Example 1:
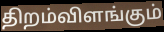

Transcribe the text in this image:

திறம்விளங்கும்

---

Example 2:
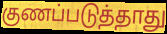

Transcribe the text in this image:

குணப்படுத்தாது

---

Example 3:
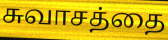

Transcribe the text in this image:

சுவாசத்தை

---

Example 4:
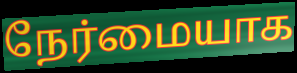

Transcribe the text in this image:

நேர்மையாக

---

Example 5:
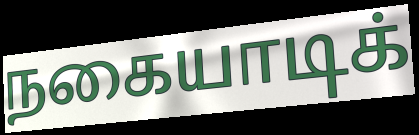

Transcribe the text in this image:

நகையாடிக்